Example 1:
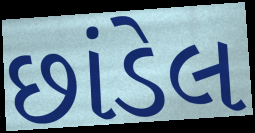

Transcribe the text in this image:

છાંડેલ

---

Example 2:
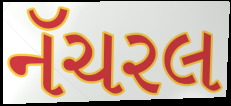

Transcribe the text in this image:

નૅચરલ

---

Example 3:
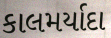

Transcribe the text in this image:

કાલમર્યાદા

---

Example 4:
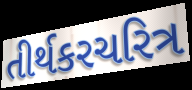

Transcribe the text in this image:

તીર્થકરચરિત્ર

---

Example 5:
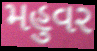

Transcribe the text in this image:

મહુવર